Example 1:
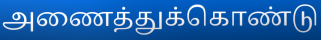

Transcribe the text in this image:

அணைத்துக்கொண்டு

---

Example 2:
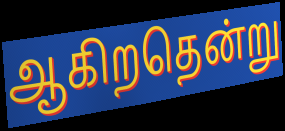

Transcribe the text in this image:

ஆகிறதென்று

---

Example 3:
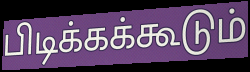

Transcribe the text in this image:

பிடிக்கக்கூடும்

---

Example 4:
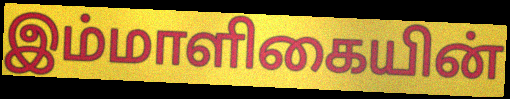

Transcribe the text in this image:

இம்மாளிகையின்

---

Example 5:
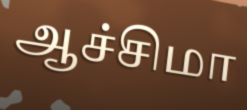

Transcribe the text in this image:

ஆச்சிமா